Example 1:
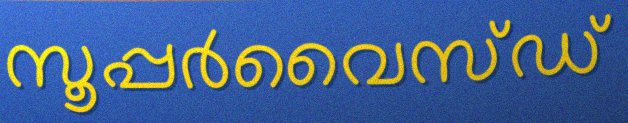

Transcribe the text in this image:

സൂപ്പർവൈസ്ഡ്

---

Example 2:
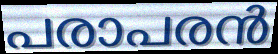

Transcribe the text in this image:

പരാപരൻ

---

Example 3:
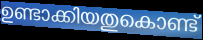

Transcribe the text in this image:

ഉണ്ടാക്കിയതുകൊണ്ട്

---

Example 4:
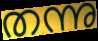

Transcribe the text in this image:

തന്നു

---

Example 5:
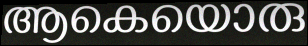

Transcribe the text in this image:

ആകെയൊരു